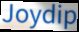
Joydip